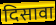
दिसावा